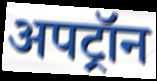
अपट्रॉन